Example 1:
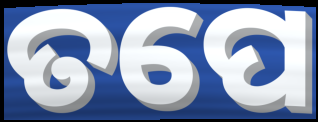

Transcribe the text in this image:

ତପେ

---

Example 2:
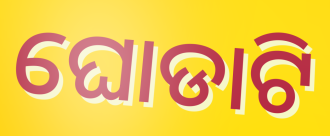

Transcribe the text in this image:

ଘୋଡାଟି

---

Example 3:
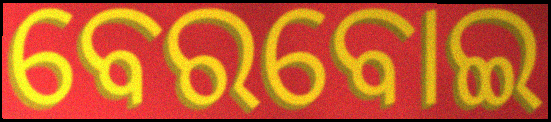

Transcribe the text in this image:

ବେରବୋଇ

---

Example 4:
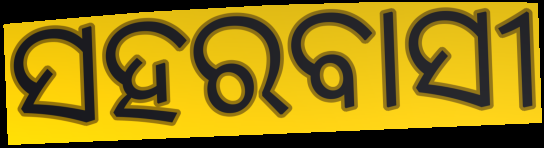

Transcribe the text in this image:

ସହରବାସୀ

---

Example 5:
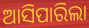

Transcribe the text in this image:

ଆସିପାରିଲା